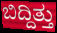
ಬಿದ್ದಿತ್ತು